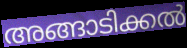
അങ്ങാടിക്കൽ